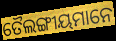
ତୈଲଙ୍ଗୀୟମାନେ